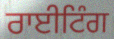
ਰਾਈਟਿੰਗ